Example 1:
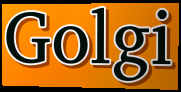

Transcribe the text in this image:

Golgi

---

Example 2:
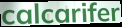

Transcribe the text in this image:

calcarifer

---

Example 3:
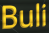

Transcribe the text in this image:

Buli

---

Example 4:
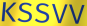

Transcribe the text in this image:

KSSVV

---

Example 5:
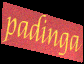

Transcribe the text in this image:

padinga